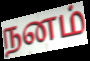
நனம்